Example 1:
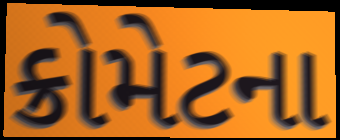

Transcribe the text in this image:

ક્રોમેટના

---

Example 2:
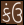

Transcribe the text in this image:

કંઉ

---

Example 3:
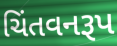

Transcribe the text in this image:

ચિંતવનરૂપ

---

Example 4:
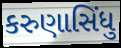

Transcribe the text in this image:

કરુણાસિંધુ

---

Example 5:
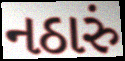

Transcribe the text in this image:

નઠારું